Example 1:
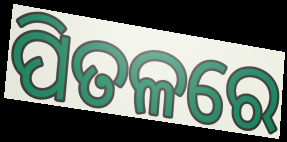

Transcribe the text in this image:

ପିତଳରେ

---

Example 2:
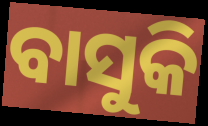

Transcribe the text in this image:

ବାସୁକି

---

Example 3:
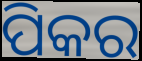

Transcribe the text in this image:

ପିକର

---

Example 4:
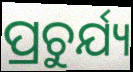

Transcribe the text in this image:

ପ୍ରଚୁର୍ଯ୍ୟ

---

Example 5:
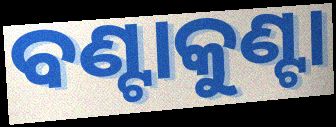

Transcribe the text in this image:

ବଣ୍ଟାକୁଣ୍ଟା